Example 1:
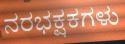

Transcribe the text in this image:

ನರಭಕ್ಷಕಗಳು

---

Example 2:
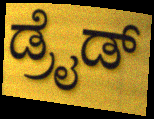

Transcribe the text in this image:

ಡ್ರೈಡ್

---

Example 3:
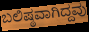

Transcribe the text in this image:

ಬಲಿಷ್ಠವಾಗಿದ್ದವು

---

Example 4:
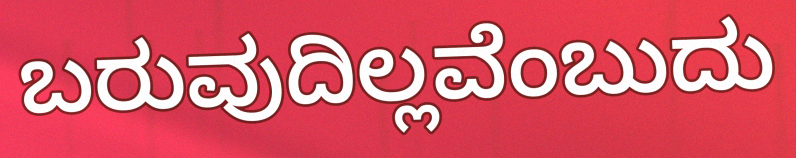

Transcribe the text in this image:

ಬರುವುದಿಲ್ಲವೆಂಬುದು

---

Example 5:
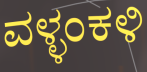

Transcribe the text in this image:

ವಳ್ಳಂಕಳಿ